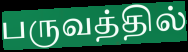
பருவத்தில்